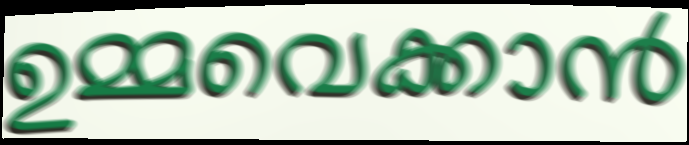
ഉമ്മവെക്കാൻ